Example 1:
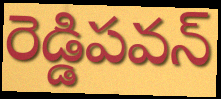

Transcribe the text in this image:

రెడ్డిపవన్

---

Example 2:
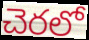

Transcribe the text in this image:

చెరలో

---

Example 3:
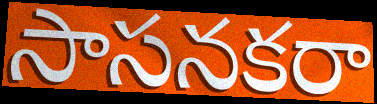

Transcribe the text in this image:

సాసనకరా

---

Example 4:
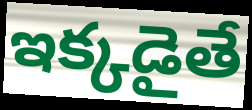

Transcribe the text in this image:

ఇక్కడైతే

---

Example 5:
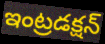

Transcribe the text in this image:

ఇంట్రడక్షన్